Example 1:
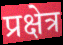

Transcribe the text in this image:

प्रक्षेत्र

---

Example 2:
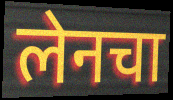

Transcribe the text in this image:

लेनचा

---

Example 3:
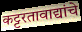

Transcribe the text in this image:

कट्टरतावाद्यांचे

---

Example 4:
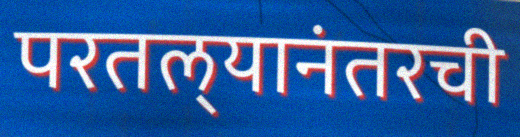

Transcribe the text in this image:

परतल्यानंतरची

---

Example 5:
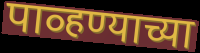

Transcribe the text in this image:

पाव्हण्याच्या